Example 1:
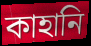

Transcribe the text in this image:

কাহানি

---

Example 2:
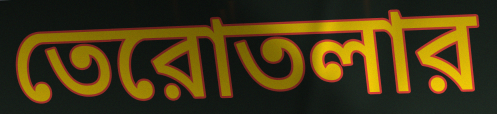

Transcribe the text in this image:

তেরোতলার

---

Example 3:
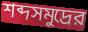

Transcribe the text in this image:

শব্দসমুদ্রের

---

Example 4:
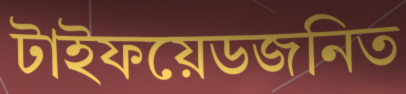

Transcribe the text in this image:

টাইফয়েডজনিত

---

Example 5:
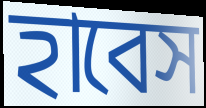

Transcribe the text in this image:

হাবেস